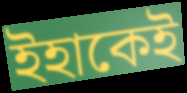
ইহাকেই